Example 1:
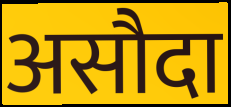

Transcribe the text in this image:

असौदा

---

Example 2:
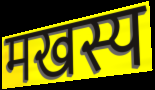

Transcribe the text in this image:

मखस्य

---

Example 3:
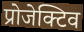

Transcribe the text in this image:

प्रोजेक्टिव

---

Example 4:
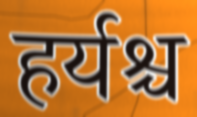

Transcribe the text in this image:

हर्यश्च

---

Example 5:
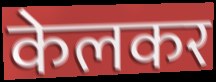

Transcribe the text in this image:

केलकर